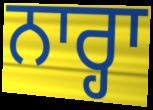
ਨਾਰ੍ਹਾ